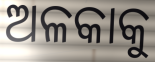
ଅଳକାକୁ